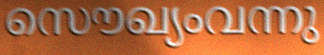
സൌഖ്യംവന്നു